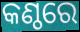
କଣ୍ଠରେ